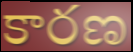
కారణ